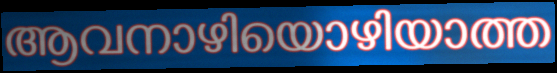
ആവനാഴിയൊഴിയാത്ത